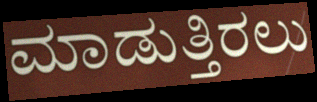
ಮಾಡುತ್ತಿರಲು